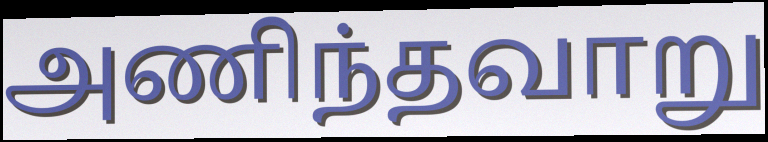
அணிந்தவாறு